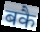
बकै